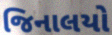
જિનાલયો